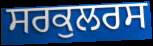
ਸਰਕੁਲਰਸ